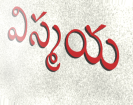
విస్మయ